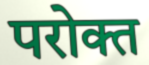
परोक्त